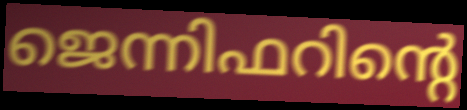
ജെന്നിഫറിന്റെ